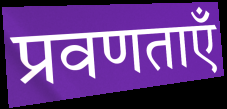
प्रवणताएँ